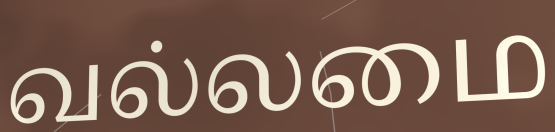
வல்லமை